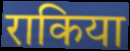
राकिया